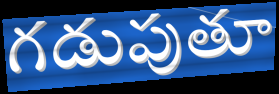
గడుపుతూ